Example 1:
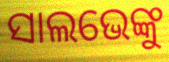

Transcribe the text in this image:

ସାଲଭେଙ୍କୁ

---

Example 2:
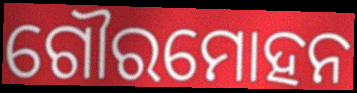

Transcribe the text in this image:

ଗୌରମୋହନ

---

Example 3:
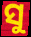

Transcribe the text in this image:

ସୁ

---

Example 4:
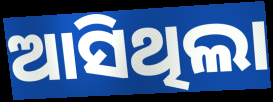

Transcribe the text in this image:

ଆସିଥିଲା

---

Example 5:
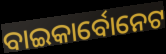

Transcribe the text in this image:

ବାଇକାର୍ବୋନେଟ